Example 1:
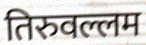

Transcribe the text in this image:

तिरुवल्लम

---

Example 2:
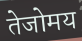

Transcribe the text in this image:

तेजोमय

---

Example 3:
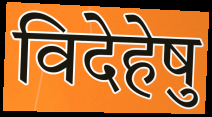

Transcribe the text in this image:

विदेहेषु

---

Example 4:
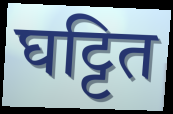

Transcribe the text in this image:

घट्टित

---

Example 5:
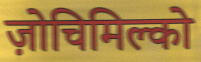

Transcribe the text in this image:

ज़ोचिमिल्को